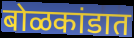
बोळकांडात